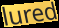
lured